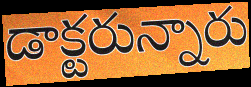
డాక్టరున్నారు